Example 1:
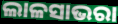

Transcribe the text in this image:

ଲାଳସାଭରା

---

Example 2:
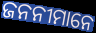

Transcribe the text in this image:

ଜନନୀମାନେ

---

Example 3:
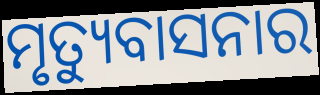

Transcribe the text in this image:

ମୃତ୍ୟୁବାସନାର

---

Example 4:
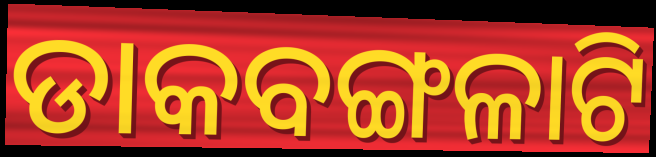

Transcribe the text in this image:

ଡାକବଙ୍ଗଳାଟି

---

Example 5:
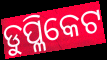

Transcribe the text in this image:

ଡୁପ୍ଳିକେଟ